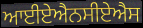
ਆਈਏਐਨਸੀਏਐਸ